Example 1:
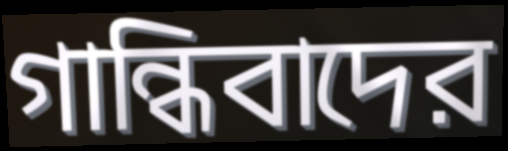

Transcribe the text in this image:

গান্ধিবাদের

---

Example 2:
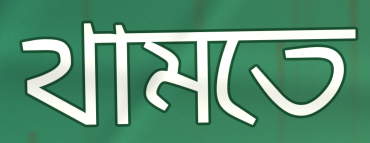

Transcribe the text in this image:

থামতে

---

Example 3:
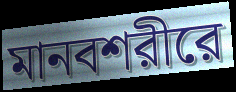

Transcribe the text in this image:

মানবশরীরে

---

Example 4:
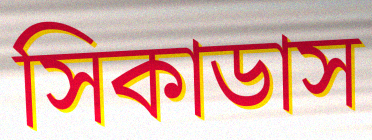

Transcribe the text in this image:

সিকাডাস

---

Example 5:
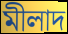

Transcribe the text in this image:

মীলাদ